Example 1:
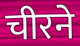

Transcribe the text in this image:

चीरने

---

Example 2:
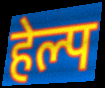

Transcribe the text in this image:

हेल्प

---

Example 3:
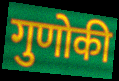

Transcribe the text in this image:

गुणोकी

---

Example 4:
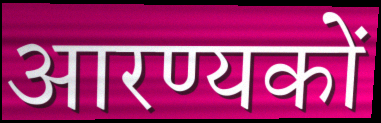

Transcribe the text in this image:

आरण्यकों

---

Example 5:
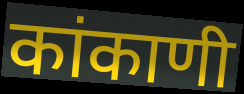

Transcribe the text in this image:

कांकाणी